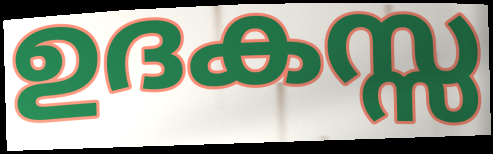
ഉദകസ്സ